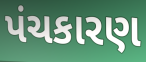
પંચકારણ